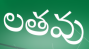
లతవు